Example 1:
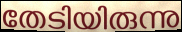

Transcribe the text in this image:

തേടിയിരുന്നു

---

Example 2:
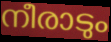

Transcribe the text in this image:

നീരാടും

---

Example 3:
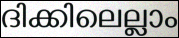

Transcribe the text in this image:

ദിക്കിലെല്ലാം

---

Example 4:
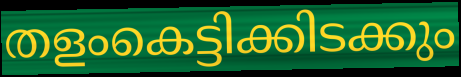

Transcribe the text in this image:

തളംകെട്ടിക്കിടക്കും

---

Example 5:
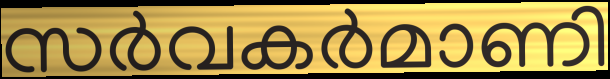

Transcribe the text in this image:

സർവകർമാണി